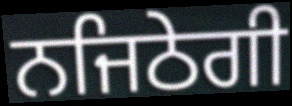
ਨਜਿਠੇਗੀ